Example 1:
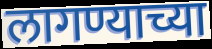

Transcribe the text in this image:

लागण्याच्या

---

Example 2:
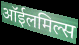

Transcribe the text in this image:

ऑईलमिल्स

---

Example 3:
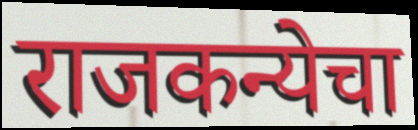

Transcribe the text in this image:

राजकन्येचा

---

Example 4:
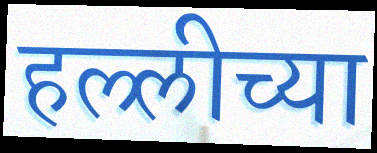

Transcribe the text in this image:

हल्लीच्या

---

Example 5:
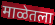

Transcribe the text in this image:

माळेतला